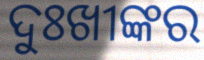
ଦୁଃଖୀଙ୍କର